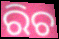
ରିଚ